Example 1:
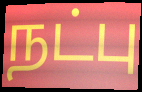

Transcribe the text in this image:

நட்பு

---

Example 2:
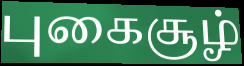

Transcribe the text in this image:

புகைசூழ்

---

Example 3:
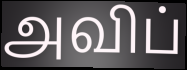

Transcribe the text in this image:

அவிப்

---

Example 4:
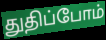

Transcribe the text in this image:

துதிப்போம்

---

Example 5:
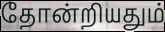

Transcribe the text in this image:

தோன்றியதும்